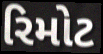
રિમોટ